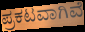
ಪ್ರಕಟವಾಗಿವೆ